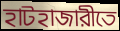
হাটহাজারীতে